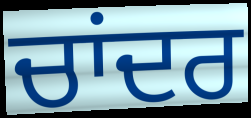
ਚਾਂਦਰ